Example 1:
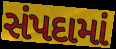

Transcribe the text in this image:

સંપદામાં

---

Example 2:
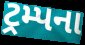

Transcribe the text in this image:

ટ્રમ્પના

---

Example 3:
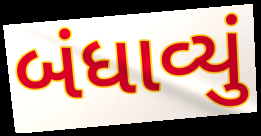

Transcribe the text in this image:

બંધાવ્યું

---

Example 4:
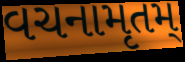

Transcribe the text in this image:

વચનામૃતમ્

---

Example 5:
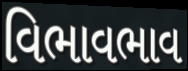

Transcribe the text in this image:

વિભાવભાવ